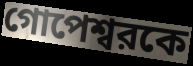
গোপেশ্বরকে